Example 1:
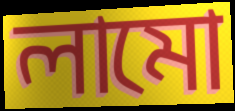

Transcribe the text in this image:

লামো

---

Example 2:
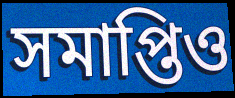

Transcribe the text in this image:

সমাপ্তিও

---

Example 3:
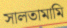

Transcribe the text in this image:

সালতামামি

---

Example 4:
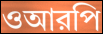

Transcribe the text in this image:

ওআরপি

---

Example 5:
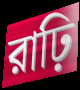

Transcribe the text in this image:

রাঢ়ি